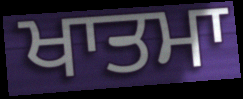
ਖਾਤਮਾ